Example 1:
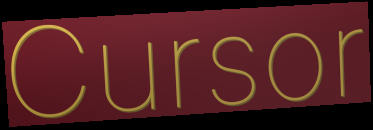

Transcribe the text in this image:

Cursor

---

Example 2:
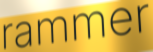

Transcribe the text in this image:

rammer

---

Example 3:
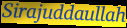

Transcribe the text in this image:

Sirajuddaullah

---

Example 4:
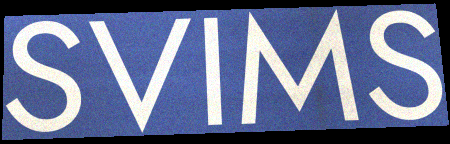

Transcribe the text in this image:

SVIMS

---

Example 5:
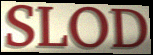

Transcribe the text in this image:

SLOD